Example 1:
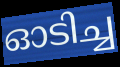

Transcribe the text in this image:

ഓടിച്ച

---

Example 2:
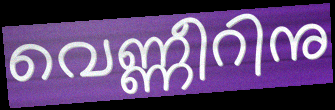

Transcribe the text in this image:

വെണ്ണീറിനു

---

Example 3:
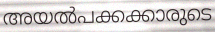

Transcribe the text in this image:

അയൽപക്കക്കാരുടെ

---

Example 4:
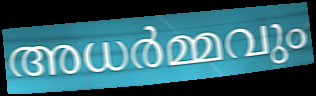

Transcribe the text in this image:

അധർമ്മവും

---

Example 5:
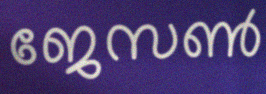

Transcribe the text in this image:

ജേസൺ